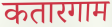
कतारगाम